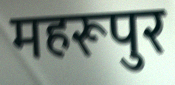
महरूपुर